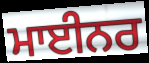
ਮਾਈਨਰ